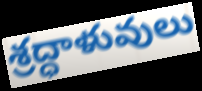
శ్రద్ధాళువులు